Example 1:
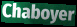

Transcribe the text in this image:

Chaboyer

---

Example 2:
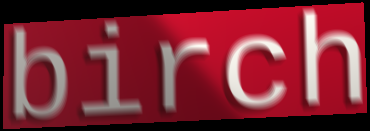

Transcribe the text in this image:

birch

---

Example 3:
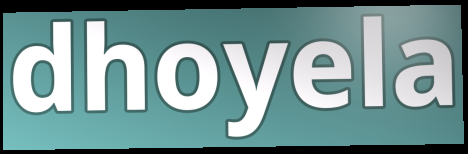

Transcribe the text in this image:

dhoyela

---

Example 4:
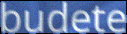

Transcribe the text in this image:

budete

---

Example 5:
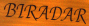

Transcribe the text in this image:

BIRADAR